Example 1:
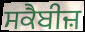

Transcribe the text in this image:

ਸਕੈਬੀਜ਼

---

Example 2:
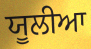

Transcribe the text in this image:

ਯੂਲੀਆ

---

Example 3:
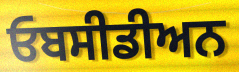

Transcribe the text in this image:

ਓਬਸੀਡੀਅਨ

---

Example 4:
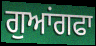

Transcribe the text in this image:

ਗੁਆਂਗਫਾ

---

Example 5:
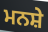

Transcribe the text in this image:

ਮਨਸ਼ੇ